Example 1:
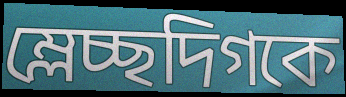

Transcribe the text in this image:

ম্লেচ্ছদিগকে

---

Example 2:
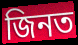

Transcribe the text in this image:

জিনত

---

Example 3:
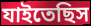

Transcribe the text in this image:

যাইতেছিস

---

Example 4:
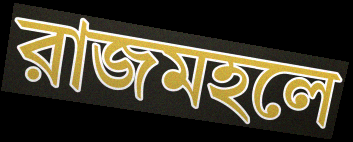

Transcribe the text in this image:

রাজমহলে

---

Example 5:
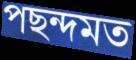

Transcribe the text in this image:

পছন্দমত